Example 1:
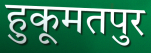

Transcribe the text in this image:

हुकूमतपुर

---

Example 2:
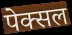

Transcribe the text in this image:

पेक्सल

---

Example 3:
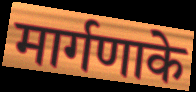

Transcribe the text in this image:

मार्गणाके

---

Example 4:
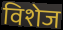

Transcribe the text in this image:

विशेज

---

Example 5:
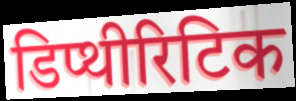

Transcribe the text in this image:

डिप्थीरिटिक